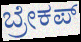
ಬ್ರೇಕಪ್